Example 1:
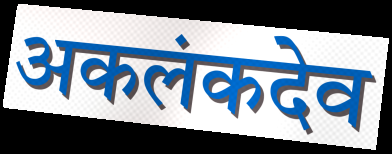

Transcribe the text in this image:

अकलंकदेव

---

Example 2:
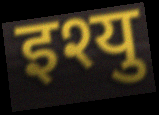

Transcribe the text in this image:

इश्यु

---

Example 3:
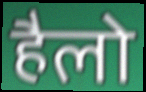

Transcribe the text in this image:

हैलो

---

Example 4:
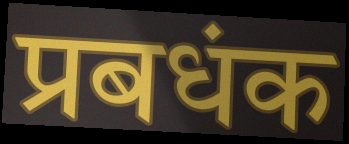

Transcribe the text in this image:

प्रबधंक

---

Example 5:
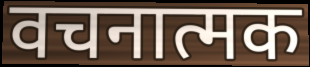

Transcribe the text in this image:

वचनात्मक